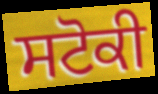
ਸਟੋਕੀ